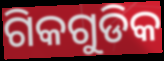
ଗିକଗୁଡିକ